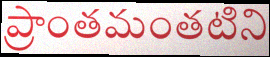
ప్రాంతమంతటిని